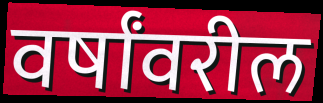
वर्षांवरील